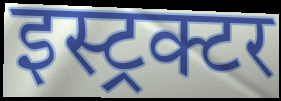
इस्ट्रक्टर